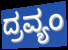
ದ್ರವ್ಯಂ